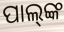
ପାଲ୍‌ଙ୍କ